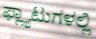
ಫ್ಲ್ಯಾಟುಗಳಲ್ಲಿ